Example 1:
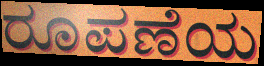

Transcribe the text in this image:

ರೂಪಣೆಯ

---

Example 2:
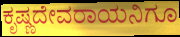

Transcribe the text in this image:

ಕೃಷ್ಣದೇವರಾಯನಿಗೂ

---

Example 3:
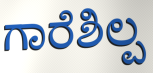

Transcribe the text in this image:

ಗಾರೆಶಿಲ್ಪ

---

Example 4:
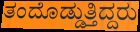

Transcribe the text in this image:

ತಂದೊಡ್ಡುತ್ತಿದ್ದರು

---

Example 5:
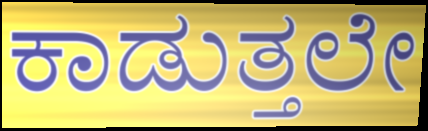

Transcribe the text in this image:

ಕಾಡುತ್ತಲೇ